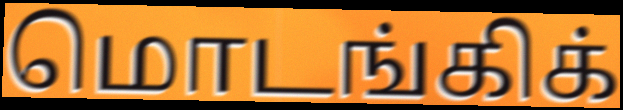
மொடங்கிக்